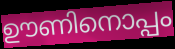
ഊണിനൊപ്പം